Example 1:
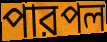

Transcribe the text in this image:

পারপল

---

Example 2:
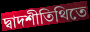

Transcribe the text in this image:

দ্বাদশীতিথিতে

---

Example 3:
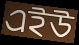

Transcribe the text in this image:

এইউ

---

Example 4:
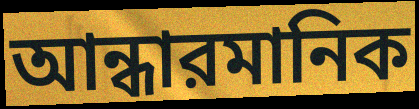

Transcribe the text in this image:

আন্ধারমানিক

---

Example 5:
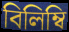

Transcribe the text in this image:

বিলিম্বি